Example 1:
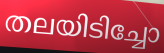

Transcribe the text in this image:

തലയിടിച്ചോ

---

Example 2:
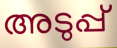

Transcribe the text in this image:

അടുപ്പ്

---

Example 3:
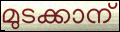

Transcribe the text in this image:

മുടക്കാന്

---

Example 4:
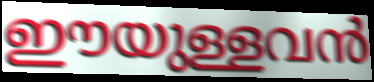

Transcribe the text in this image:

ഈയുള്ളവൻ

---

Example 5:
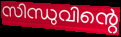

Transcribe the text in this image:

സിന്ധുവിന്റെ